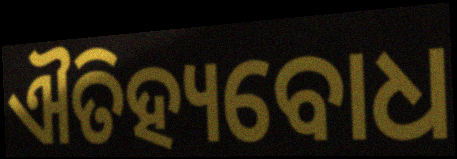
ଐତିହ୍ୟବୋଧ